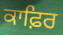
ਕਾਫ਼ਿਰ